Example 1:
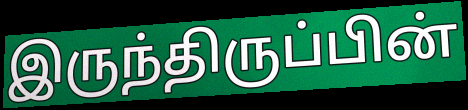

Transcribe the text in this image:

இருந்திருப்பின்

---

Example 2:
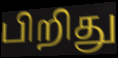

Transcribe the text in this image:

பிறிது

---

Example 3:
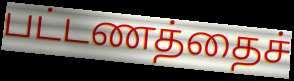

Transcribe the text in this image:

பட்டணத்தைச்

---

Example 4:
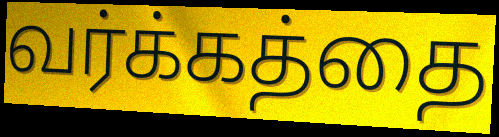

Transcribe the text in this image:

வர்க்கத்தை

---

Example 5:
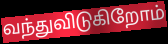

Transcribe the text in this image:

வந்துவிடுகிறோம்